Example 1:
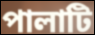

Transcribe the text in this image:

পালাটি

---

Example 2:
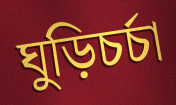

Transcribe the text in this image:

ঘুড়িচর্চা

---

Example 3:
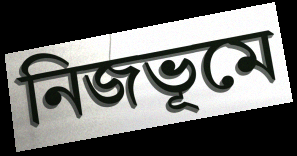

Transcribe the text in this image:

নিজভূমে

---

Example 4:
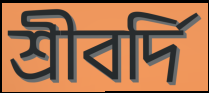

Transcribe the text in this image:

শ্রীবর্দি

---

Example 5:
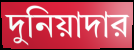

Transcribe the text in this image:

দুনিয়াদার